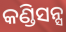
କଣ୍ଡିସନ୍ସ